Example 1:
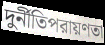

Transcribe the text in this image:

দুর্নীতিপরায়ণতা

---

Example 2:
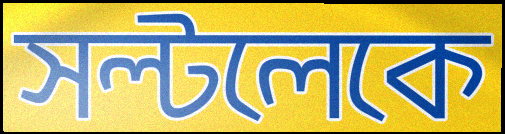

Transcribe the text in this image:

সল্টলেকে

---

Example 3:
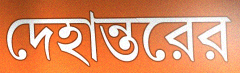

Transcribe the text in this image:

দেহান্তরের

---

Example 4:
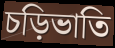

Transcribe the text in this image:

চড়িভাতি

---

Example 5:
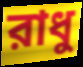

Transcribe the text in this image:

রাধু